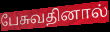
பேசுவதினால்